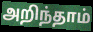
அறிந்தாம்